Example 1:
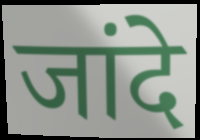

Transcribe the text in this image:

जांदे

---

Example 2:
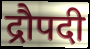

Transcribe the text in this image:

द्रौपदी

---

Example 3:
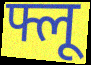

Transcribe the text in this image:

फ्लू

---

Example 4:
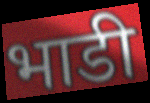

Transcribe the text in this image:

भाडी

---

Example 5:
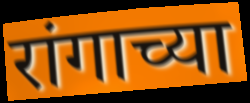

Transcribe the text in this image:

रांगाच्या